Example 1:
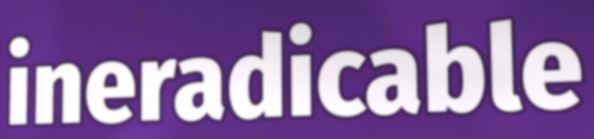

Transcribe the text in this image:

ineradicable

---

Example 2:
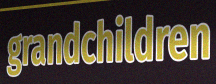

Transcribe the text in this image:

grandchildren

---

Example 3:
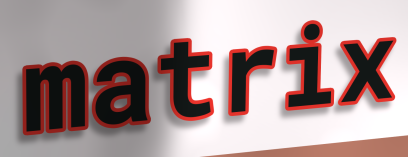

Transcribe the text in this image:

matrix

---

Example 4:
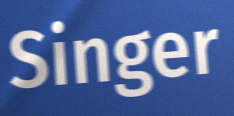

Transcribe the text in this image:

Singer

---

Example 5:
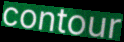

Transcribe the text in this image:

contour